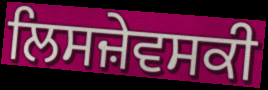
ਲਿਸਜ਼ੇਵਸਕੀ